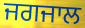
ਜਗਜਾਲ